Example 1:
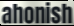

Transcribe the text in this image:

ahonish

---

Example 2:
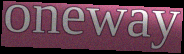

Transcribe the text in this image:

oneway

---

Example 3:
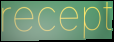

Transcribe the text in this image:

recept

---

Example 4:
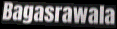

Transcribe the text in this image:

Bagasrawala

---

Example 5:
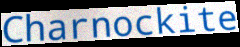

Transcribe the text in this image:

Charnockite